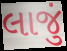
લાજું